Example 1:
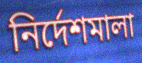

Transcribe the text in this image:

নির্দেশমালা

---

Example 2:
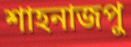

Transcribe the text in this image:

শাহনাজপু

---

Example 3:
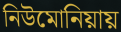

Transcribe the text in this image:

নিউমোনিয়ায়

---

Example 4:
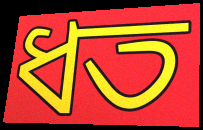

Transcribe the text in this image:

ধত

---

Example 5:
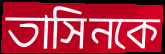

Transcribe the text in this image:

তাসিনকে